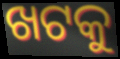
ଖଟକୁ